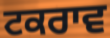
ਟਕਰਾਵ